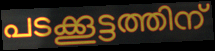
പടക്കൂട്ടത്തിന്